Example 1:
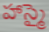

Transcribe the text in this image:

హాస్మై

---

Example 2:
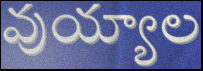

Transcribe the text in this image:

వుయ్యాల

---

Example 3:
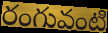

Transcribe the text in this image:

రంగువంటి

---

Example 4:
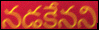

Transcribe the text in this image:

నడకేనని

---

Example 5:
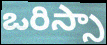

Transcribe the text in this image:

ఒరిస్సా